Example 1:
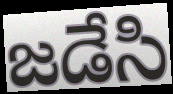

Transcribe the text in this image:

జడేసి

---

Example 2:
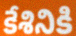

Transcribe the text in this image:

కేశినికి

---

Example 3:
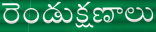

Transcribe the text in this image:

రెండుక్షణాలు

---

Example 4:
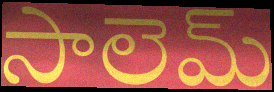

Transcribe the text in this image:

సాలెమ్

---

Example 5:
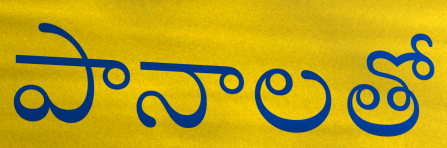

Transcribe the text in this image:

పానాలతో